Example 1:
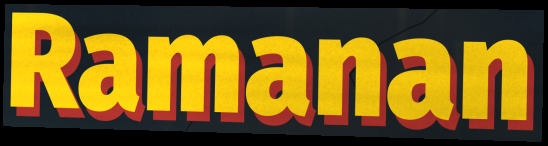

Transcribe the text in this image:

Ramanan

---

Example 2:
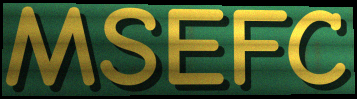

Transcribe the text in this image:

MSEFC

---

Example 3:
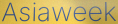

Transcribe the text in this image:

Asiaweek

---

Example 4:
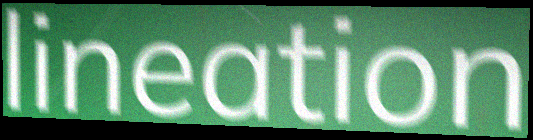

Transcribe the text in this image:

lineation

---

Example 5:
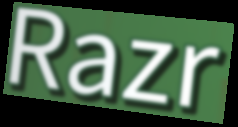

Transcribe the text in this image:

Razr